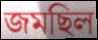
জমছিল